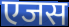
एजस